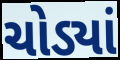
ચોડ્યાં